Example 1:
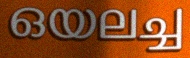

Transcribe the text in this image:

ഒയലച്ച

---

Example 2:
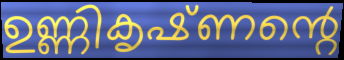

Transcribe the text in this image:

ഉണ്ണികൃഷ്‌ണന്റെ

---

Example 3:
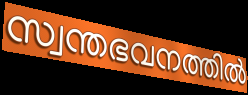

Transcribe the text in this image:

സ്വന്തഭവനത്തിൽ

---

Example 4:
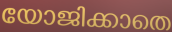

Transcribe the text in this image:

യോജിക്കാതെ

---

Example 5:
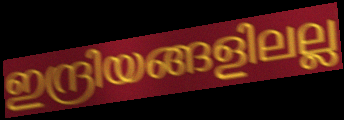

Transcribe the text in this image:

ഇന്ദ്രിയങ്ങളിലല്ല